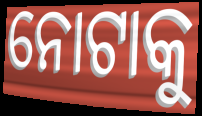
ନୋଟାକୁ